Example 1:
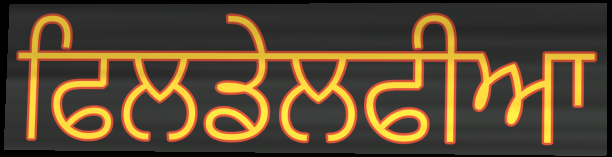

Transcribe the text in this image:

ਫਿਲਡੇਲਫੀਆ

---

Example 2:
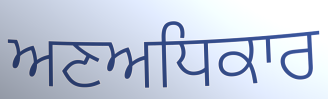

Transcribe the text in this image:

ਅਣਅਧਿਕਾਰ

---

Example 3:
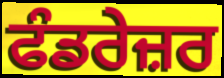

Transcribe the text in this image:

ਫੰਡਰੇਜ਼ਰ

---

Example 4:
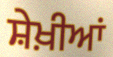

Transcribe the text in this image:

ਸ਼ੇਖ਼ੀਆਂ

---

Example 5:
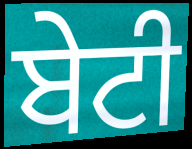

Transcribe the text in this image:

ਬੇਟੀ